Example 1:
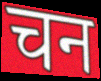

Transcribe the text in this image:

चन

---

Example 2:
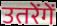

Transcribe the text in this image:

उतरेंगें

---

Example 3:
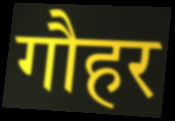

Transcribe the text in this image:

गौहर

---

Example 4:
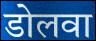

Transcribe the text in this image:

डोलवा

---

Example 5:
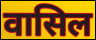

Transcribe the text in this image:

वासिल